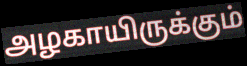
அழகாயிருக்கும்